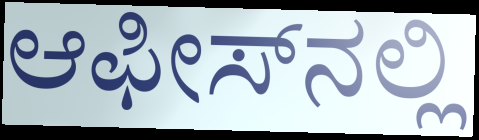
ಆಫೀಸ್‌ನಲ್ಲಿ